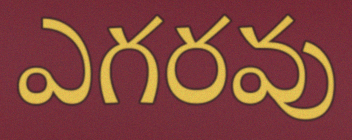
ఎగరవు